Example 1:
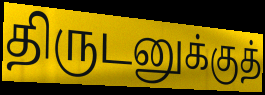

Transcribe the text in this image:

திருடனுக்குத்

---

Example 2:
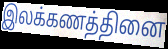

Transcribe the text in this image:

இலக்கணத்தினை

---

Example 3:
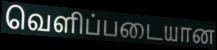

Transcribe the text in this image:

வெளிப்படையான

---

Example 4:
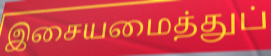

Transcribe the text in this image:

இசையமைத்துப்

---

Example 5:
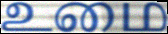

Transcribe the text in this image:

உமை